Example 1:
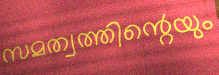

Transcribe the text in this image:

സമത്വത്തിന്റെയും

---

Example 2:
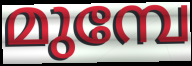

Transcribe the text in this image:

മുമ്പേ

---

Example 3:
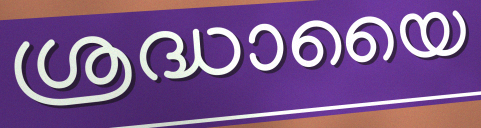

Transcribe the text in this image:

ശ്രദ്ധായൈ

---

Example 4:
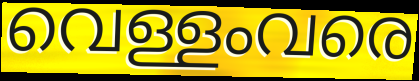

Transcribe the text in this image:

വെള്ളംവരെ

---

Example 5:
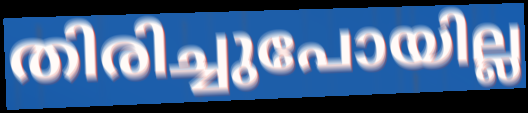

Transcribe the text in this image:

തിരിച്ചുപോയില്ല